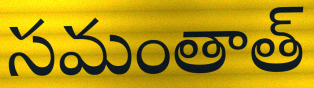
సమంతాత్